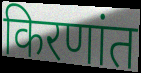
किरणांत